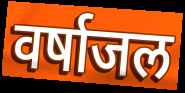
वर्षाजल